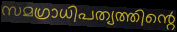
സമഗ്രാധിപത്യത്തിന്റെ